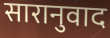
सारानुवाद